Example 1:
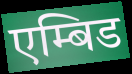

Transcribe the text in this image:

एम्बिड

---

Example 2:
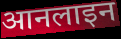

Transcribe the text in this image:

आनलाइन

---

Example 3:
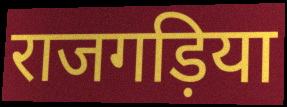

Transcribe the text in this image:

राजगड़िया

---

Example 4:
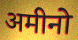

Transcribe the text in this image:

अमीनो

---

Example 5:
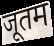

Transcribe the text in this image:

जूतम